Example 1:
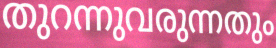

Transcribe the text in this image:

തുറന്നുവരുന്നതും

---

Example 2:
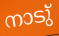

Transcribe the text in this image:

നാടു്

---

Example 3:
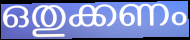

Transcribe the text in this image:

ഒതുക്കണം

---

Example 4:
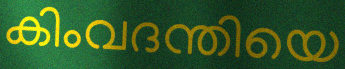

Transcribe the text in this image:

കിംവദന്തിയെ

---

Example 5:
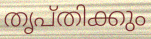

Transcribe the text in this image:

തൃപ്തിക്കും